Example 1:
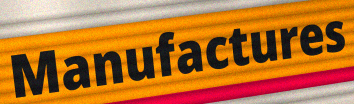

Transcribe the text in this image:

Manufactures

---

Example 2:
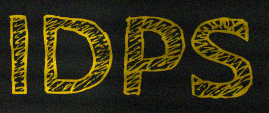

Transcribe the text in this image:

IDPS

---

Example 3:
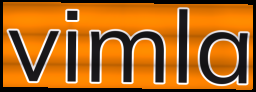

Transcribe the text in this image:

vimla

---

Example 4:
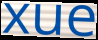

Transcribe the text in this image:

xue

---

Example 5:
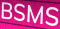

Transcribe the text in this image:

BSMS